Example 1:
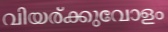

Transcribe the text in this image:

വിയര്ക്കുവോളം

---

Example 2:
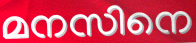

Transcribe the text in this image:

മനസിനെ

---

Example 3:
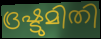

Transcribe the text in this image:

ദ്രഷ്ടുമിതി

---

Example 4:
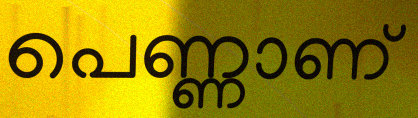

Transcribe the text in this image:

പെണ്ണാണ്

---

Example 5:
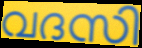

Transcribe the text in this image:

വദസി